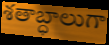
శతాబ్ధాలుగా